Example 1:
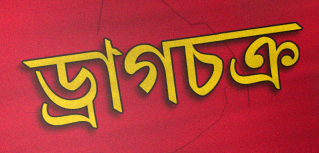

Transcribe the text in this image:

ড্রাগচক্র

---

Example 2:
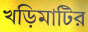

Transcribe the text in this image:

খড়িমাটির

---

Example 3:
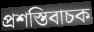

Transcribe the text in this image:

প্রশস্তিবাচক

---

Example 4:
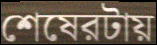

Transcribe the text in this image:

শেষেরটায়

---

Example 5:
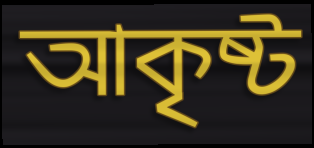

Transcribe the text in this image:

আকৃষ্ট